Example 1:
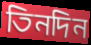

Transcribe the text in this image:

তিনদিন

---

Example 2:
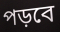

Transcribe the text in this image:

পড়বে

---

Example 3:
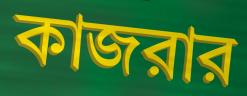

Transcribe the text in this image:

কাজরার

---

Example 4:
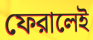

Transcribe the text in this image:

ফেরালেই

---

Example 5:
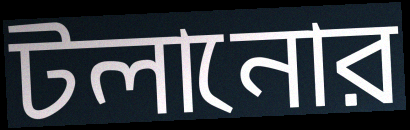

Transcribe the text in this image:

টলানোর